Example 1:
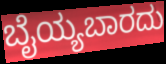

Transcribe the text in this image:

ಬೈಯ್ಯಬಾರದು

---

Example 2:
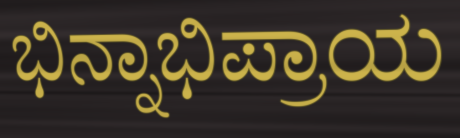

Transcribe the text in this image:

ಭಿನ್ನಾಭಿಪ್ರಾಯ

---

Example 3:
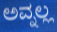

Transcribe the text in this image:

ಅವ್ನಲ್ಲ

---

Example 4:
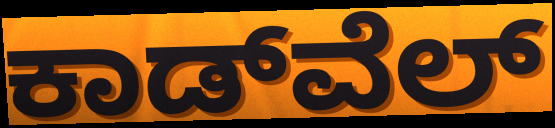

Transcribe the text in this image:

ಕಾಡ್‌ವೆಲ್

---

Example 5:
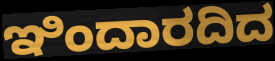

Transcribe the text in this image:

ಇಿಂದಾರದಿದ